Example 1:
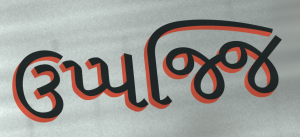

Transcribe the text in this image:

ઉપ્પજ્જિ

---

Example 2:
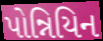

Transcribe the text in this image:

પોન્નિયિન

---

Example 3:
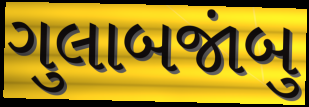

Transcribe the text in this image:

ગુલાબજાંબુ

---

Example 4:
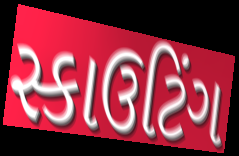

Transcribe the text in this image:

સ્કાઉટિંગ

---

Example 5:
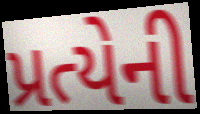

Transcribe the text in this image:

પ્રત્યેની